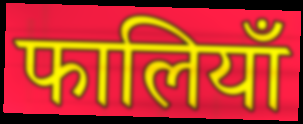
फालियाँ